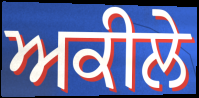
ਅਕੀਲੇ